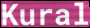
Kural